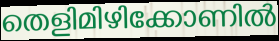
തെളിമിഴിക്കോണിൽ